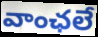
వాంఛలే